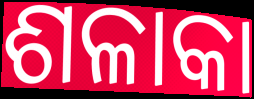
ଶଳାକା